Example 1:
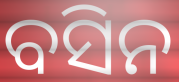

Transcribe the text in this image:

ବସିନ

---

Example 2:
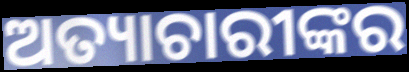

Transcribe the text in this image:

ଅତ୍ୟାଚାରୀଙ୍କର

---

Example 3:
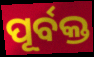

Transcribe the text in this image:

ପୂର୍ବକ୍ତ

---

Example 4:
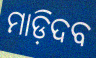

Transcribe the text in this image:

ମାଡ଼ିଦବ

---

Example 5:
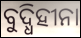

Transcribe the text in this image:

ବୁଦ୍ଧିହୀନା